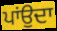
ਪਾਂਉਦਾ